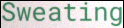
Sweating